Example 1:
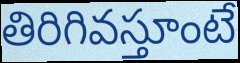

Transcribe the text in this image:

తిరిగివస్తూంటే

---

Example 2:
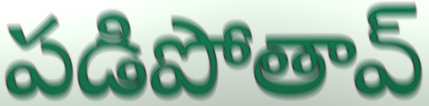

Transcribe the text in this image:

పడిపోతావ్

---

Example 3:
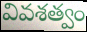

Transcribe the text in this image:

వివశత్వం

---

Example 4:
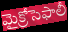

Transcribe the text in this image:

మైక్రోసెఫాలీ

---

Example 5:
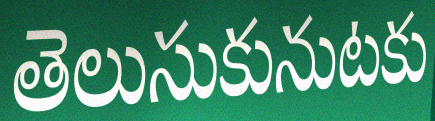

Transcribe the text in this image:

తెలుసుకునుటకు